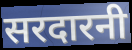
सरदारनी